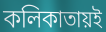
কলিকাতায়ই